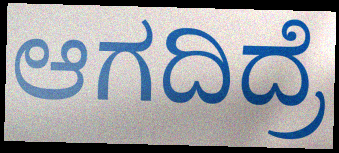
ಆಗದಿದ್ರೆ